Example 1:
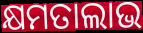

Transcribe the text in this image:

କ୍ଷମତାଲାଭ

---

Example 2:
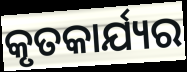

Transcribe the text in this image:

କୃତକାର୍ଯ୍ୟର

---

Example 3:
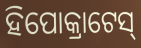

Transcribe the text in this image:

ହିପୋକ୍ରାଟେସ୍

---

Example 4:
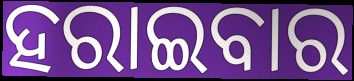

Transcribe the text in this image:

ହରାଇବାର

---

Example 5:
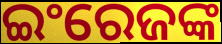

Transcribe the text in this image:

ଇଂରେଜଙ୍କ